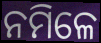
ନମିଳେ